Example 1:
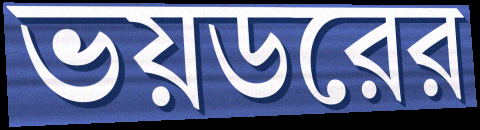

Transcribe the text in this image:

ভয়ডরের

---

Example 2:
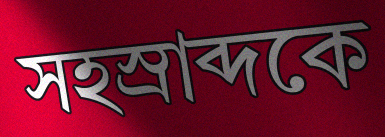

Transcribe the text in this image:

সহস্রাব্দকে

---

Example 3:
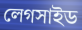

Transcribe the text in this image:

লেগসাইড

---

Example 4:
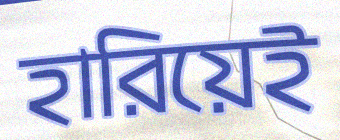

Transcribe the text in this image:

হারিয়েই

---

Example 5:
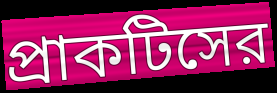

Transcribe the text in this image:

প্রাকটিসের